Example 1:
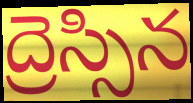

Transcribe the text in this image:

ద్రెస్సిన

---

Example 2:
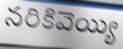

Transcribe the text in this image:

నరికివెయ్యి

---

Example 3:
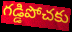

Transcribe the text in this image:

గడ్డిపోచకు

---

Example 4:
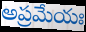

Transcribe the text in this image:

అప్రమేయః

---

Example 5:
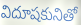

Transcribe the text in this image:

విదూషకునితో